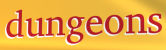
dungeons